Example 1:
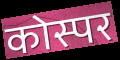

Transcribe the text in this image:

कोस्पर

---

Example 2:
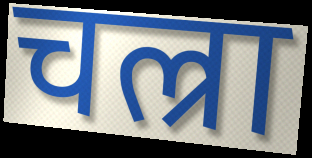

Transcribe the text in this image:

चल्रा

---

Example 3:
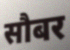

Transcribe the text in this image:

सौबर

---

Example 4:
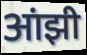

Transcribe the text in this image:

आंझी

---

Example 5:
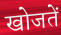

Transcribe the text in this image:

खोजतें